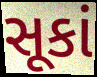
સૂકાં